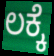
ಲಕ್ಕೆ